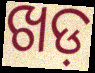
ଖଡ଼